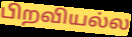
பிறவியல்ல